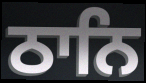
ਠਾਨਿ